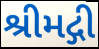
શ્રીમદ્ગી